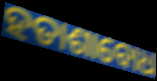
ହତାଶାବୋଧ